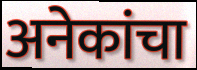
अनेकांचा